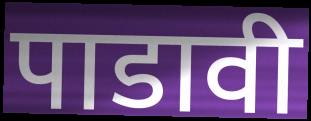
पाडावी